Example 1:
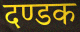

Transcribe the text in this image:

दण्डक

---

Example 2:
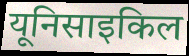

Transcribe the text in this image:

यूनिसाइकिल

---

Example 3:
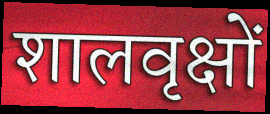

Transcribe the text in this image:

शालवृक्षों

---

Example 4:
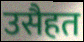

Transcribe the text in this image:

उसैहत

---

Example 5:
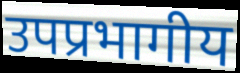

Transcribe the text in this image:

उपप्रभागीय